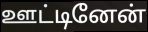
ஊட்டினேன்